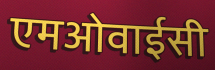
एमओवाईसी